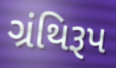
ગ્રંથિરૂપ